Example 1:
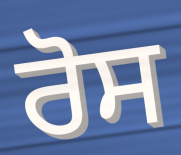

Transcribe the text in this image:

ਰੋਸ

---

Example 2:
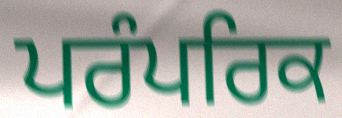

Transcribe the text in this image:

ਪਰੰਪਰਿਕ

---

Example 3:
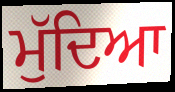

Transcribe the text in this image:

ਮੁੱਦਿਆ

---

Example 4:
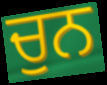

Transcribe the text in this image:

ਚੁਨ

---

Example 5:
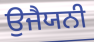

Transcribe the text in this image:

ਉਜੈਯਨੀ